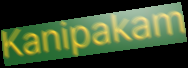
Kanipakam